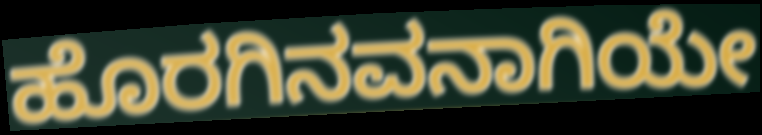
ಹೊರಗಿನವನಾಗಿಯೇ